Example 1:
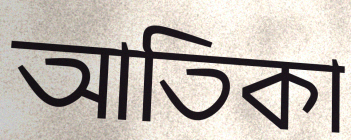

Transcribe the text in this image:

আতিকা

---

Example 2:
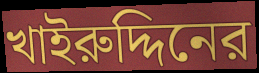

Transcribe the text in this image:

খাইরুদ্দিনের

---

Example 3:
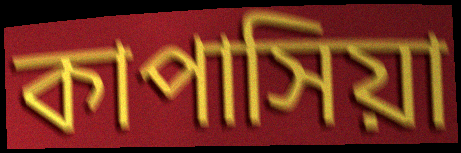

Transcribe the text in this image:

কাপাসিয়া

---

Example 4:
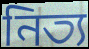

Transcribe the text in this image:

নিত্য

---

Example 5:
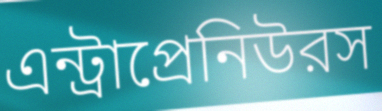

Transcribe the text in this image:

এন্ট্রাপ্রেনিউরস